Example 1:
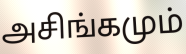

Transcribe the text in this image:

அசிங்கமும்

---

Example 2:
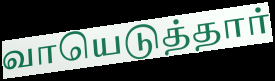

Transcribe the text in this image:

வாயெடுத்தார்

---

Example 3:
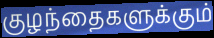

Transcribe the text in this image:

குழந்தைகளுக்கும்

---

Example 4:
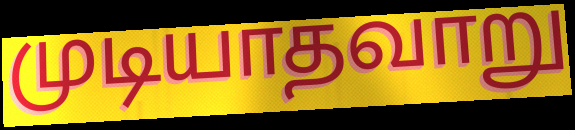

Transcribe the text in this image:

முடியாதவாறு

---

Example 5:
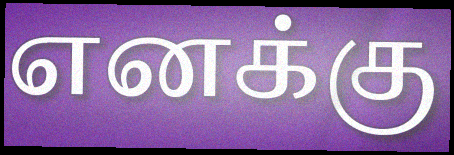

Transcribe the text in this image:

எனக்கு